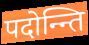
पदोन्न्ति